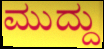
ಮುದ್ದು